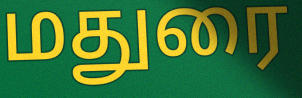
மதுரை